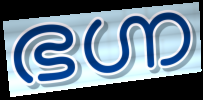
ഭഗ്ന